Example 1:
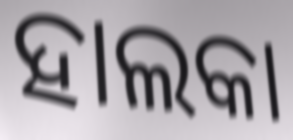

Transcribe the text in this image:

ହାଲକା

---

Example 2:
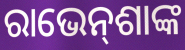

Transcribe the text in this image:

ରାଭେନ୍‌ଶାଙ୍କ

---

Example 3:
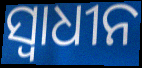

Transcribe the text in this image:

ସ୍ଵାଧୀନ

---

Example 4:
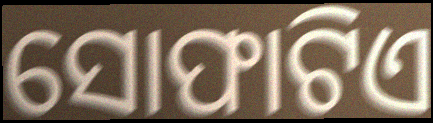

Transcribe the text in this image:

ସୋଫାଟିଏ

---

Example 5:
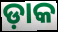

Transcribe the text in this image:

ଡ଼ାକ